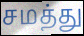
சமத்து